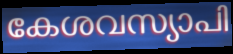
കേശവസ്യാപി